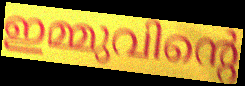
ഇമ്മുവിന്റെ